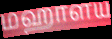
மஹாளய